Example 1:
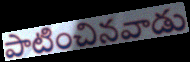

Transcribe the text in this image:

పాటించినవాడు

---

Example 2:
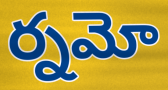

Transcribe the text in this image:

ర్నమో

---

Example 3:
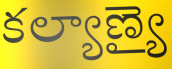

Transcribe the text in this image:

కల్యాణ్యై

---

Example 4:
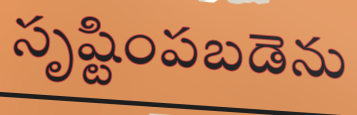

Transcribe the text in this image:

సృష్టింపబడెను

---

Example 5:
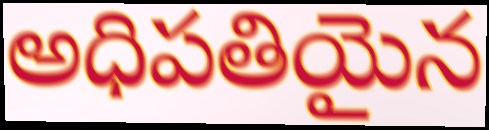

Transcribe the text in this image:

అధిపతియైన